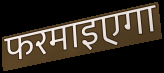
फरमाइएगा